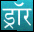
ड्रॉर